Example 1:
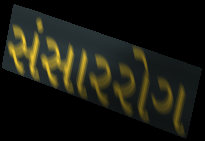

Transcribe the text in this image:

સંસારરોગ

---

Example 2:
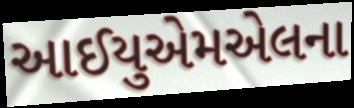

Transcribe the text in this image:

આઈયુએમએલના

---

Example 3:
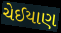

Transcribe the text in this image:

ચેઈયાણ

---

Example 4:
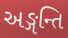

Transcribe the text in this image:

અઙ્ગન્તિ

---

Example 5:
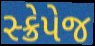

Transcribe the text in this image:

સ્ક્રેપેજ